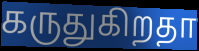
கருதுகிறதா